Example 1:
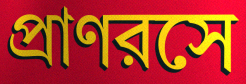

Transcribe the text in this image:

প্রাণরসে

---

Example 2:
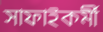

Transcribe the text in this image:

সাফাইকর্মী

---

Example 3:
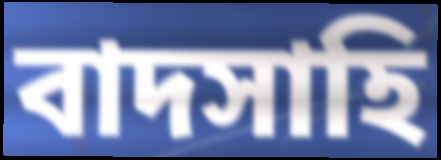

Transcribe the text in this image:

বাদসাহি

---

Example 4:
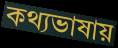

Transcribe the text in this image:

কথ্যভাষায়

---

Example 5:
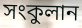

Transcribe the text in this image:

সংকুলান